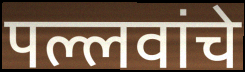
पल्लवांचे